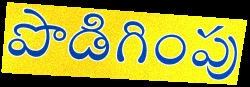
పొడిగింపు